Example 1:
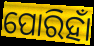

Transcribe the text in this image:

ପୋରିହାଁ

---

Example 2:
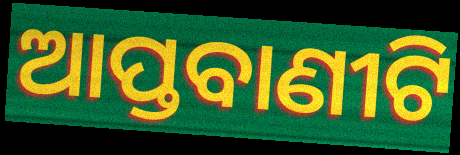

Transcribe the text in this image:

ଆପ୍ତବାଣୀଟି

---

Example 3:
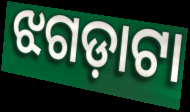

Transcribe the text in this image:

ଝଗଡ଼ାଟା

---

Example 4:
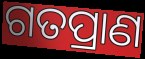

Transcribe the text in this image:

ଗତପ୍ରାଣ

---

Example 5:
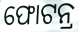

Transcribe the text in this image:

ଫୋଟନ୍ର